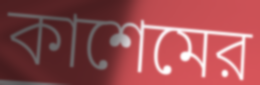
কাশেমের